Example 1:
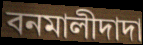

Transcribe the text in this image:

বনমালীদাদা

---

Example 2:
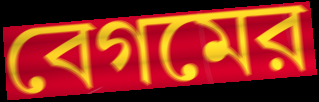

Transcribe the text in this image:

বেগমের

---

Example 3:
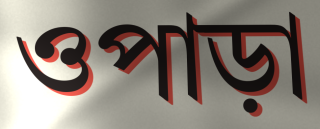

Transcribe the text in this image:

ওপাড়া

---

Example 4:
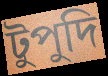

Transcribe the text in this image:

টুপুদি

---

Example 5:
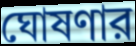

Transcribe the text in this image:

ঘোষণার